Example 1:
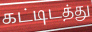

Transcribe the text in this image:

கட்டிடத்து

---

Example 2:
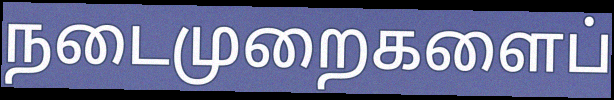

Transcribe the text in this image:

நடைமுறைகளைப்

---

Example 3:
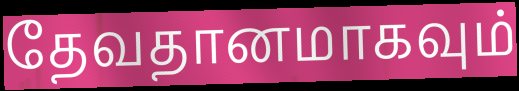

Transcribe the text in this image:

தேவதானமாகவும்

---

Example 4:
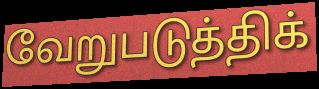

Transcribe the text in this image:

வேறுபடுத்திக்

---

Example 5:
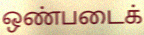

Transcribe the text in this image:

ஒண்படைக்